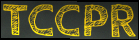
TCCPR